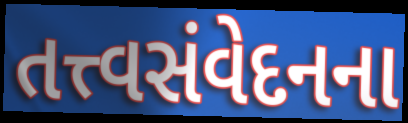
તત્ત્વસંવેદનના